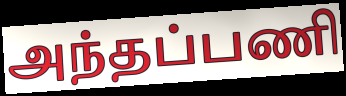
அந்தப்பணி